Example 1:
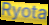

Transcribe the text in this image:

Ryota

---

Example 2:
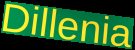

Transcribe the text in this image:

Dillenia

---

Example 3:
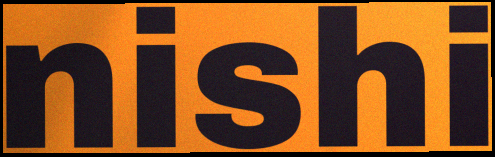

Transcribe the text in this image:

nishi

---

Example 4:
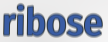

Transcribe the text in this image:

ribose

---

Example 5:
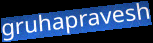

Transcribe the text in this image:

gruhapravesh